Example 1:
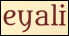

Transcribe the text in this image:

eyali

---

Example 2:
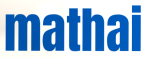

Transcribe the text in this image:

mathai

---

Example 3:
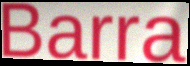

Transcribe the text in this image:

Barra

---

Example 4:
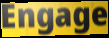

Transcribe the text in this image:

Engage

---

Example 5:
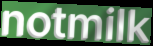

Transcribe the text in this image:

notmilk